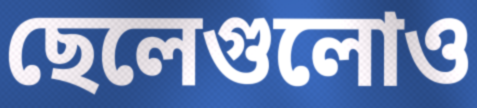
ছেলেগুলোও